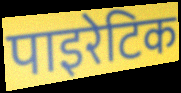
पाइरेटिक